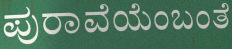
ಪುರಾವೆಯೆಂಬಂತೆ